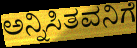
ಅನ್ನಿಸಿತವನಿಗೆ